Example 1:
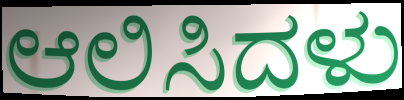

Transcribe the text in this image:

ಆಲಿಸಿದಳು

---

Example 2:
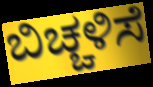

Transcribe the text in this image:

ಬಿಚ್ಚಳಿಸೆ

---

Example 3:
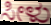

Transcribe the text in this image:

ಸೀಳು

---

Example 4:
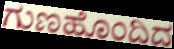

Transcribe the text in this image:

ಗುಣಹೊಂದಿದ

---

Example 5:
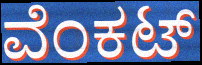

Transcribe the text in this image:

ವೆಂಕಟ್